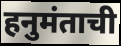
हनुमंताची